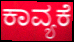
ಕಾವ್ಯಕೆ